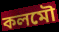
কলমৌ